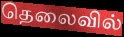
தெலைவில்